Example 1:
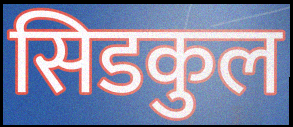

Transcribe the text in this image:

सिडकुल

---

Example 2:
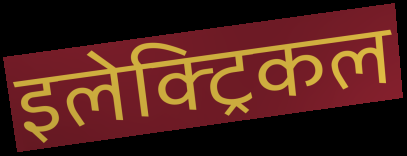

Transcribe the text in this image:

इलेक्ट्रिकल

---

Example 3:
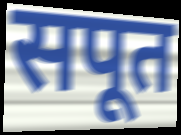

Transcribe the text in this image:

सपूत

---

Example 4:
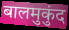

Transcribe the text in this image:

बालमुकुंद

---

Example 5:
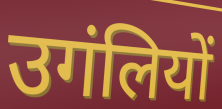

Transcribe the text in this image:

उगंलियों